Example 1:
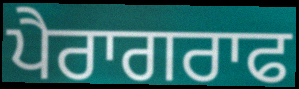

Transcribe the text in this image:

ਪੈਰਾਗਰਾਫ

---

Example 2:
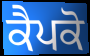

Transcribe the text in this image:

ਕੈਪਕੋ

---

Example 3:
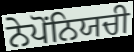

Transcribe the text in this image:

ਨੇਪੋਂਨਿਯਚੀ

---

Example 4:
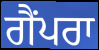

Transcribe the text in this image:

ਗੈਂਪਰਾ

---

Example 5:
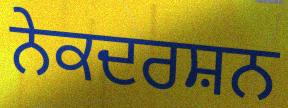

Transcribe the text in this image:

ਨੇਕਦਰਸ਼ਨ